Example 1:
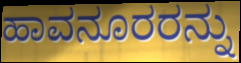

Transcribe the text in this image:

ಹಾವನೂರರನ್ನು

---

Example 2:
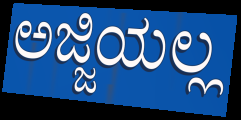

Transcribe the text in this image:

ಅಜ್ಜಿಯಲ್ಲ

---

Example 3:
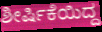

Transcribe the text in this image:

ಶೀರ್ಷಿಕೆಯಿದ್ದ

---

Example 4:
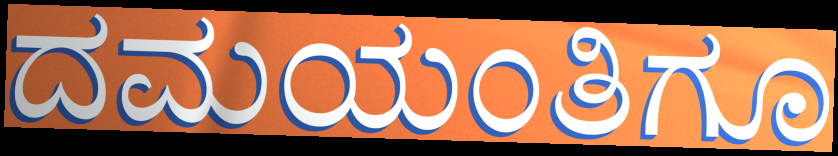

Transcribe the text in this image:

ದಮಯಂತಿಗೂ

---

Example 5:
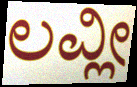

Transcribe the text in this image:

ಲವ್ಲೀ